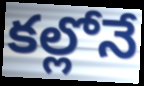
కల్లోనే